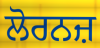
ਲੋਰਨਜ਼